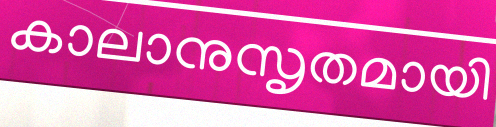
കാലാനുസൃതമായി